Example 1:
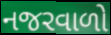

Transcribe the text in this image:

નજરવાળો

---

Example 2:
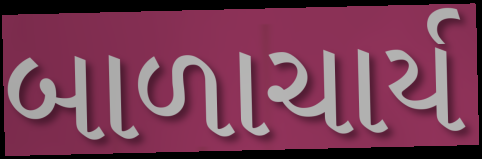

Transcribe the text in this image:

બાળાચાર્ય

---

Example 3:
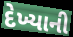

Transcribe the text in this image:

દેખ્યાની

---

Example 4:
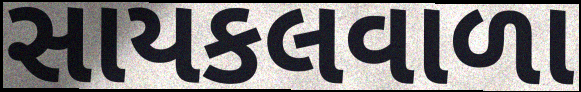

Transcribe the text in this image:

સાયકલવાળા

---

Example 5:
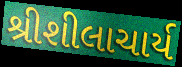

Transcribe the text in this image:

શ્રીશીલાચાર્ય